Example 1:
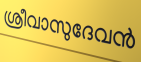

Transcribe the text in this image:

ശ്രീവാസുദേവൻ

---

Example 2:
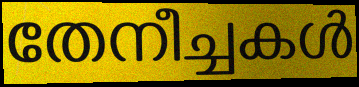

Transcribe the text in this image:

തേനീച്ചകൾ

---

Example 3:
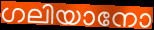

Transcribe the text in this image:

ഗലിയാനോ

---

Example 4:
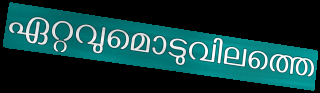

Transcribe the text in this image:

ഏറ്റവുമൊടുവിലത്തെ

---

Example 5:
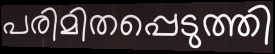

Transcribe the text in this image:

പരിമിതപ്പെടുത്തി